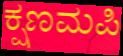
ಕ್ಷಣಮಪಿ